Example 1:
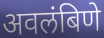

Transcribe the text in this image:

अवलंबिणे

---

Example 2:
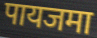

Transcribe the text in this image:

पायजमा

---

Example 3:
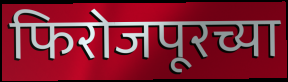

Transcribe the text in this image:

फिरोजपूरच्या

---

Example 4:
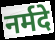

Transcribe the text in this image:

नर्मदे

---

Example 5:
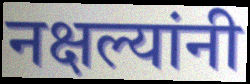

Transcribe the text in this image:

नक्षल्यांनी